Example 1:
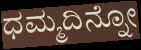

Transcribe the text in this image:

ಧಮ್ಮದಿನ್ನೋ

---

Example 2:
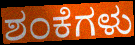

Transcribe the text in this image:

ಶಂಕೆಗಳು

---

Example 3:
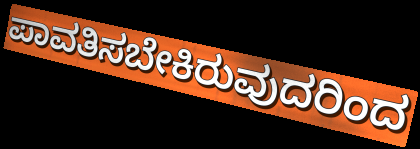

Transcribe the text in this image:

ಪಾವತಿಸಬೇಕಿರುವುದರಿಂದ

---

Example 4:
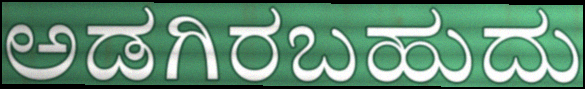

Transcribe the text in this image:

ಅಡಗಿರಬಹುದು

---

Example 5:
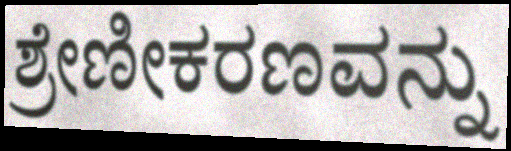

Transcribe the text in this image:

ಶ್ರೇಣೀಕರಣವನ್ನು